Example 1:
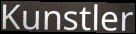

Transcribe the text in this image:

Kunstler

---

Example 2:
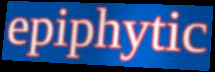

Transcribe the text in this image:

epiphytic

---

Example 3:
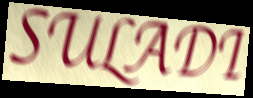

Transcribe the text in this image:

SULADI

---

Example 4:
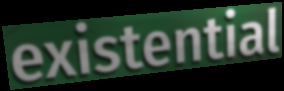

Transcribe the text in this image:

existential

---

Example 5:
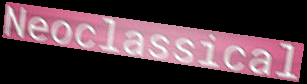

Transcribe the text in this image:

Neoclassical